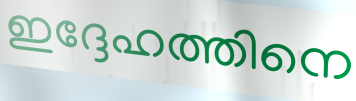
ഇദ്ദേഹത്തിനെ